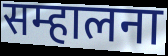
सम्हालना